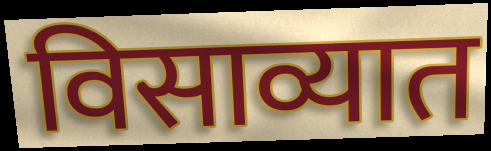
विसाव्यात